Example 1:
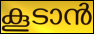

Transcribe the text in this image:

കൂടാൻ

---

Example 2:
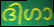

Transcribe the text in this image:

ദിഗാ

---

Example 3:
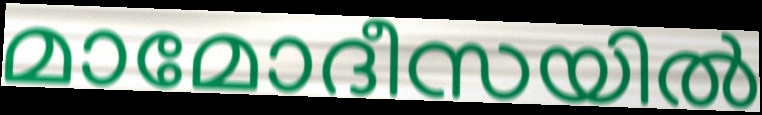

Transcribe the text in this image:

മാമോദീസയിൽ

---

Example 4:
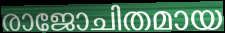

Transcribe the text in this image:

രാജോചിതമായ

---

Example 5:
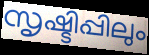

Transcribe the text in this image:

സൃഷ്ടിപ്പിലും